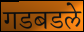
गडबडले